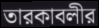
তারকাবলীর